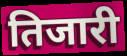
तिजारी